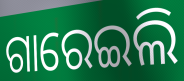
ଗାରେଇଲି